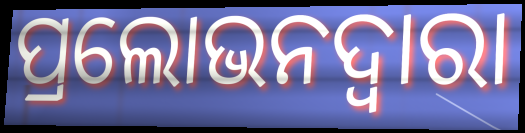
ପ୍ରଲୋଭନଦ୍ୱାରା